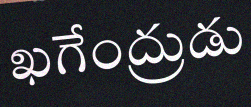
ఖగేంద్రుడు